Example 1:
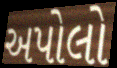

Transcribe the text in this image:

અપોલો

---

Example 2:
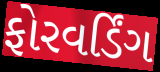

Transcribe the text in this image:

ફોરવર્ડિંગ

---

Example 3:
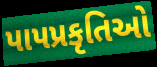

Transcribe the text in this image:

પાપપ્રકૃતિઓ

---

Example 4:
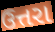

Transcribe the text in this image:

ઉત્તરા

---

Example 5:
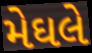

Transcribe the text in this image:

મેઘલે